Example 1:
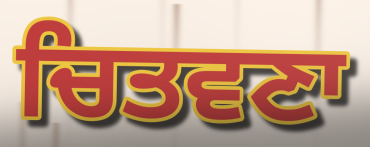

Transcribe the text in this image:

ਚਿਤਵਣਾ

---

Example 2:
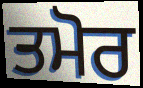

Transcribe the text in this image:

ਤਮੋਰ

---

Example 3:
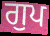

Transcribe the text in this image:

ਗੁਪ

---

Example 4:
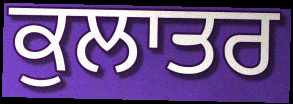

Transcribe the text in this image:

ਕੁਲਾਤਰ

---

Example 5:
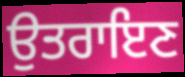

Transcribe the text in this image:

ਉਤਰਾਇਣ